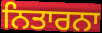
ਨਿਤਾਰਨਾ